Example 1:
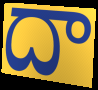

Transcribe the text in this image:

దా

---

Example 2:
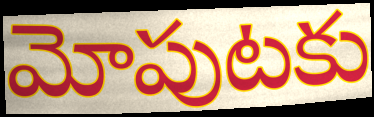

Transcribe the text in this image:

మోపుటకు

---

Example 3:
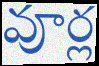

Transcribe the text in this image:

వూర్ల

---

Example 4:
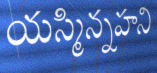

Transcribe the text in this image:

యస్మిన్నహని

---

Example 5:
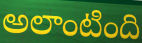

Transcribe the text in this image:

అలాంటింది